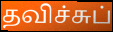
தவிச்சுப்